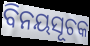
ବିନୟସୂଚକ